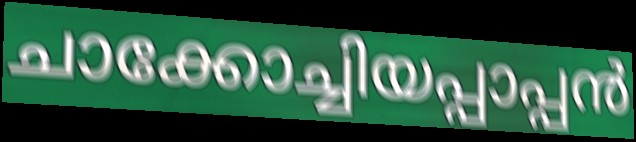
ചാക്കോച്ചിയപ്പാപ്പൻ